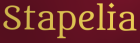
Stapelia